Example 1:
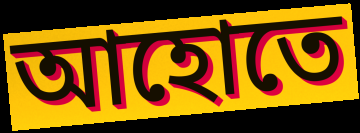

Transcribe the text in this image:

আহোতে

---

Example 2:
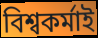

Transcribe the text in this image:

বিশ্বকৰ্মাই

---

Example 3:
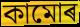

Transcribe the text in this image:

কামোৰ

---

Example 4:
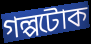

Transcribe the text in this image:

গল্পটোক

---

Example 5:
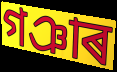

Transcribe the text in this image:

গঞাৰ